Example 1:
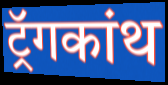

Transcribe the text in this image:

ट्रॅगकांथ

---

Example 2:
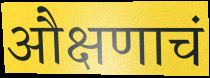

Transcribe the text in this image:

औक्षणाचं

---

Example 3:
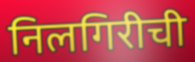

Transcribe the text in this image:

निलगिरीची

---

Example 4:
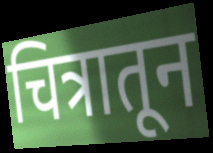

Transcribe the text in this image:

चित्रातून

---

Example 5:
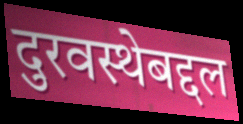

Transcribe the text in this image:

दुरवस्थेबद्दल